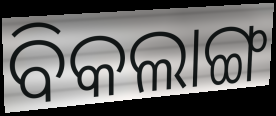
ବିକଲାଙ୍ଗ